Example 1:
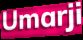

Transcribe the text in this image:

Umarji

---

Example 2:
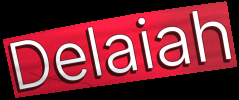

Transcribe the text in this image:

Delaiah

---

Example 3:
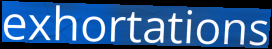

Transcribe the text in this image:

exhortations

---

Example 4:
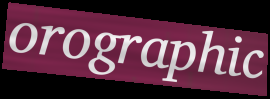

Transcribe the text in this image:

orographic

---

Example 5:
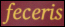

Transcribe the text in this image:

feceris